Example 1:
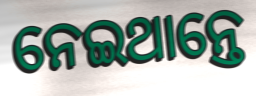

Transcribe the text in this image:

ନେଇଥାନ୍ତେ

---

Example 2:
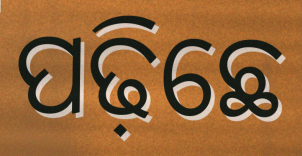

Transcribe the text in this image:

ପଢ଼ିଛେ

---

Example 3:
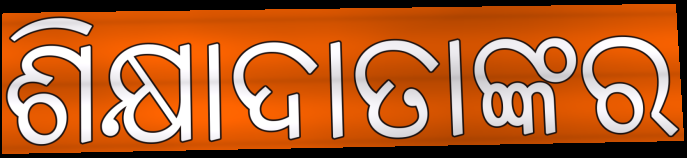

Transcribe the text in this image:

ଶିକ୍ଷାଦାତାଙ୍କର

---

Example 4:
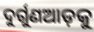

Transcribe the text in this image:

ଦୁର୍ଗୁଣଆଡ଼କୁ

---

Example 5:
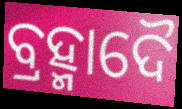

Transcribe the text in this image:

ବ୍ରହ୍ମାଦୈ